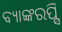
ବ୍ୟାଙ୍କରପ୍ସି